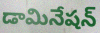
డామినేషన్